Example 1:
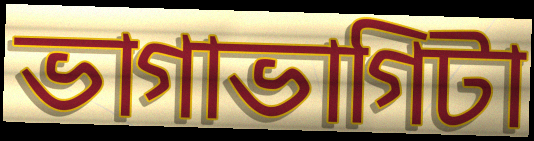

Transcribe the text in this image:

ভাগাভাগিটা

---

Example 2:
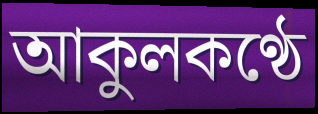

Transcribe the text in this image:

আকুলকণ্ঠে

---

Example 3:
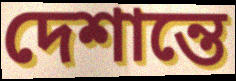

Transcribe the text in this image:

দেশান্তে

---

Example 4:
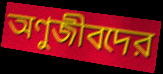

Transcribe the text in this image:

অণুজীবদের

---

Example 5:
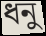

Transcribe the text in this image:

ধনু